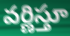
వర్ణిస్తూ